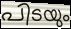
പിടയും